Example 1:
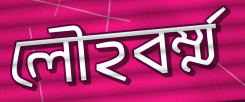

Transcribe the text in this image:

লৌহবর্ম্ম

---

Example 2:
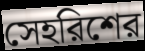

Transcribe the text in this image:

সেহরিশের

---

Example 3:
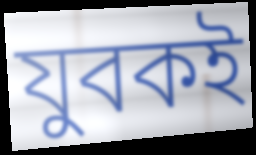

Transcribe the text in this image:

যুবকই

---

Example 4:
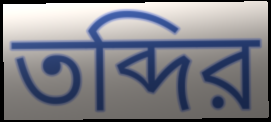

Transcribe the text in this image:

তব্দির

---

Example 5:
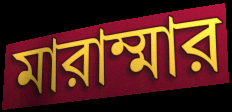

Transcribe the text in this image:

মারাম্মার